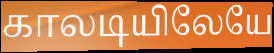
காலடியிலேயே